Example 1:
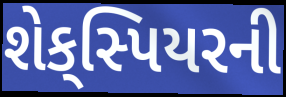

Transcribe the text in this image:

શેક્‌સ્પિયરની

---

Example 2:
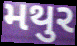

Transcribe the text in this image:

મથુર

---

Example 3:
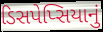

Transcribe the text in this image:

ડિસપેપ્સિયાનું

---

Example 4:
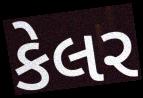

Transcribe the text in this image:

કેલર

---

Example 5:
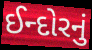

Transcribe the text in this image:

ઈન્દોરનું